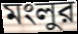
মংলুর